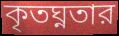
কৃতঘ্নতার